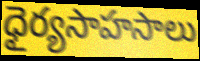
ధైర్యసాహసాలు